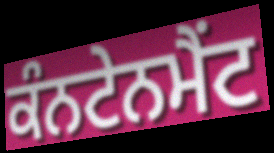
ਕੰਨਟੇਨਮੈਂਟ